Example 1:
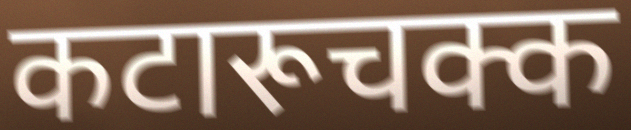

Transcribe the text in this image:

कटारूचक्क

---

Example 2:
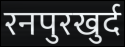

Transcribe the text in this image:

रनपुरखुर्द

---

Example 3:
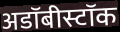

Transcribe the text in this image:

अडॉबीस्टॉक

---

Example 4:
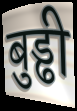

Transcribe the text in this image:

बुड्ढी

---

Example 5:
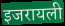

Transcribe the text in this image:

इजरायली